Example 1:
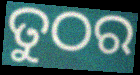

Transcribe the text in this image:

ତୁଠର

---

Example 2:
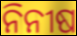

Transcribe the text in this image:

ନିନୀଷ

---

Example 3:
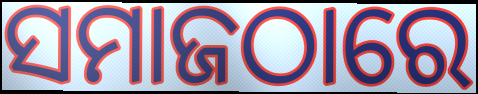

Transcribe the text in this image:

ସମାଜଠାରେ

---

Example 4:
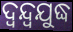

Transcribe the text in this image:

ଦ୍ୱନ୍ଦ୍ୱଯୁଦ୍ଧ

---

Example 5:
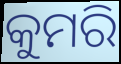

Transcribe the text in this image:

କୁମରି